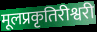
मूलप्रकृतिरीश्वरी